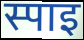
स्पाइ